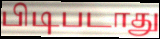
பிடிபடாது